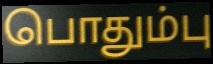
பொதும்பு